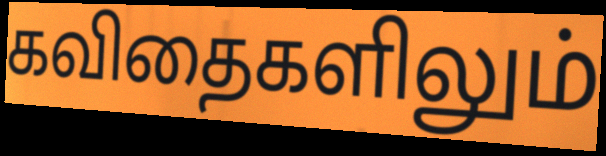
கவிதைகளிலும்